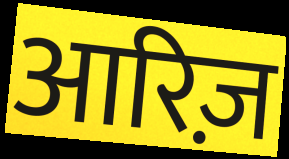
आरिज़